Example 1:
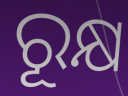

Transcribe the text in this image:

ରୂକ୍ଷ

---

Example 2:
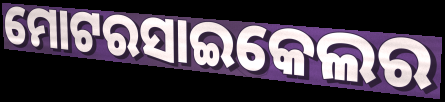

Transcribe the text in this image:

ମୋଟରସାଇକେଲର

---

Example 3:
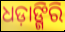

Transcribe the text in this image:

ଧଡ଼ାଙ୍ଗିରି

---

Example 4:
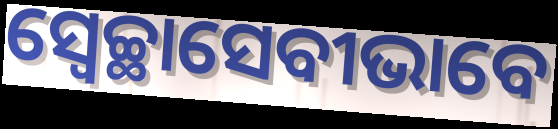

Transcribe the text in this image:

ସ୍ୱେଚ୍ଛାସେବୀଭାବେ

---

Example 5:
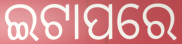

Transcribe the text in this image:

ଇଟାପରେ